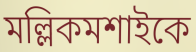
মল্লিকমশাইকে